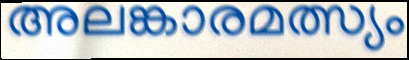
അലങ്കാരമത്സ്യം